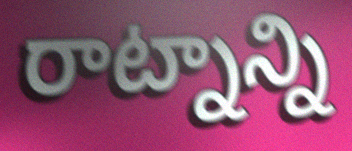
రాట్నాన్ని